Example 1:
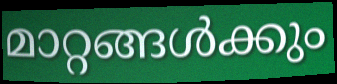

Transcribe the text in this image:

മാറ്റങ്ങൾക്കും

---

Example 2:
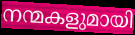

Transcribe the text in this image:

നന്മകളുമായി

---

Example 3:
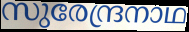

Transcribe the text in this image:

സുരേന്ദ്രനാഥ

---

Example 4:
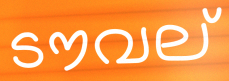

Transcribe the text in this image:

ടൗവല്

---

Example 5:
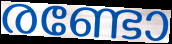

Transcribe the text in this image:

രണ്ടോ